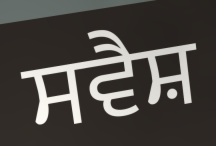
ਸਵੈਸ਼